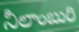
నీలాంబురి